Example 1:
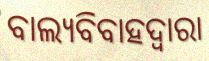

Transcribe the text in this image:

ବାଲ୍ୟବିବାହଦ୍ୱାରା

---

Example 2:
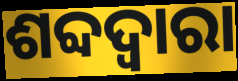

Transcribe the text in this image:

ଶବ୍ଦଦ୍ୱାରା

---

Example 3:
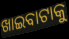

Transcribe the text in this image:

ଖାଇବାଟାକୁ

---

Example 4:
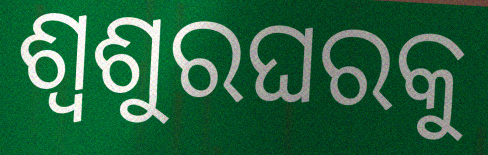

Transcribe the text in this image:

ଶ୍ୱଶୁରଘରକୁ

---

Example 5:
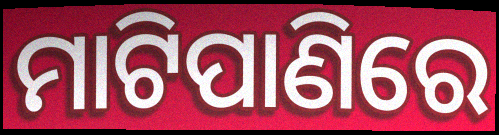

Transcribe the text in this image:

ମାଟିପାଣିରେ